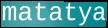
matatya